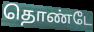
தொண்டே